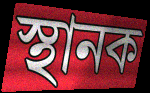
স্থানক